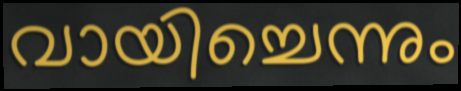
വായിച്ചെന്നും